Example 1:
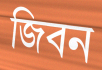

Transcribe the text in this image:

জিবন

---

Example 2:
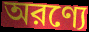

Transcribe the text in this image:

অরণ্যে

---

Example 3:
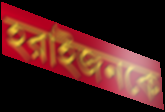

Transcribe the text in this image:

হরাইজনকে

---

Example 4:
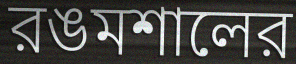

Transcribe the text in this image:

রঙমশালের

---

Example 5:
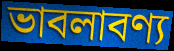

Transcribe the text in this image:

ভাবলাবণ্য